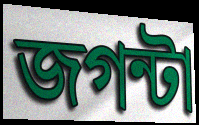
জগন্টা